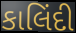
કાલિંદી